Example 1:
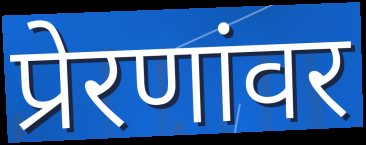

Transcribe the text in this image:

प्रेरणांवर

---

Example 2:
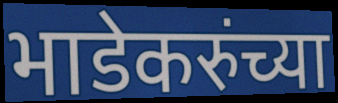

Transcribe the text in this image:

भाडेकरुंच्या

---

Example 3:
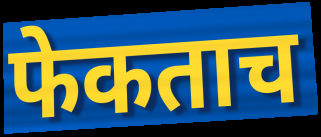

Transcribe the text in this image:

फेकताच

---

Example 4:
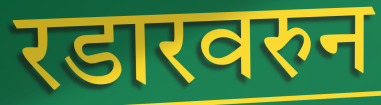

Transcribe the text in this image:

रडारवरुन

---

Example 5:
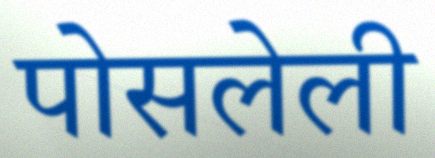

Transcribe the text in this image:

पोसलेली